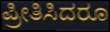
ಪ್ರೀತಿಸಿದರೂ